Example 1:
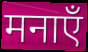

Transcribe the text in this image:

मनाएँ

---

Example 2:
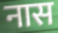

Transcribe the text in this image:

नास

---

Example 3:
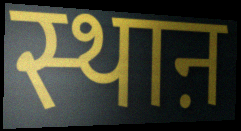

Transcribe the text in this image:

स्थाऩ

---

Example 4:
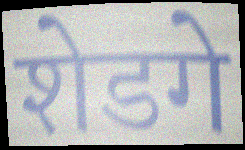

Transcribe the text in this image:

शेडगे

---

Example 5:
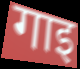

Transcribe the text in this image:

गाइ